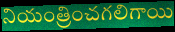
నియంత్రించగలిగాయి